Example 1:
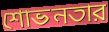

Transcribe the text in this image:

শোভনতার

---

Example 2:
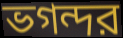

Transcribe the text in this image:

ভগন্দর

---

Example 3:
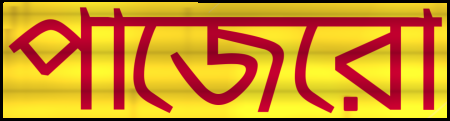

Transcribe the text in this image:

পাজেরো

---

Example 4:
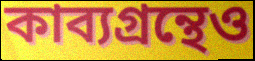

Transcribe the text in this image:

কাব্যগ্রন্থেও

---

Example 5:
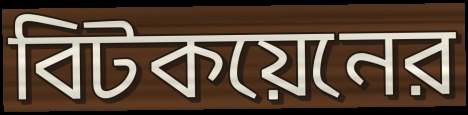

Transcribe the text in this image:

বিটকয়েনের